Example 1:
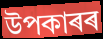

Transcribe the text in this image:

উপকাৰৰ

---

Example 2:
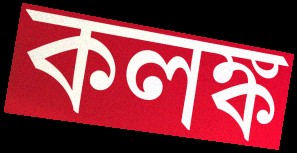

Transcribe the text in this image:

কলঙ্ক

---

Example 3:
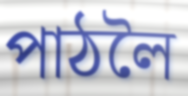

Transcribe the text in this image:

পাঠলৈ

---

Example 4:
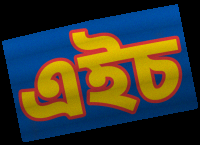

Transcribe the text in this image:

এইচ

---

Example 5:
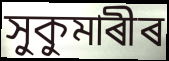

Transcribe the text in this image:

সুকুমাৰীৰ